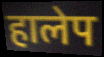
हालेप